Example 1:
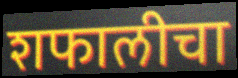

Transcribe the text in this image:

शफालीचा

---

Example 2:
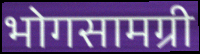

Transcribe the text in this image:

भोगसामग्री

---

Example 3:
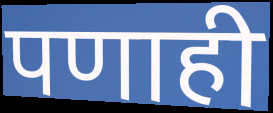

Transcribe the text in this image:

पणाही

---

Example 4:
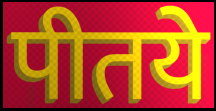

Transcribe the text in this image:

पीतये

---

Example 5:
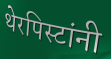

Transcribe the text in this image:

थेरपिस्टांनी